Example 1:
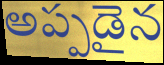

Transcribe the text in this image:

అప్పడైన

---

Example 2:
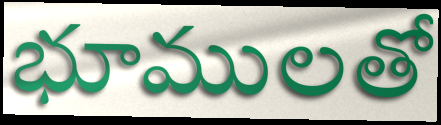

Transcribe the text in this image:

భూములతో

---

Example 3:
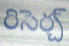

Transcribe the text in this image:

రిసెర్చ్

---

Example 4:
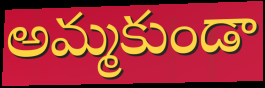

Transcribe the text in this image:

అమ్మకుండా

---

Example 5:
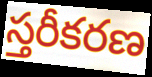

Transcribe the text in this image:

స్తరీకరణ